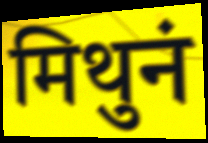
मिथुनं